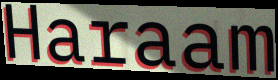
Haraam